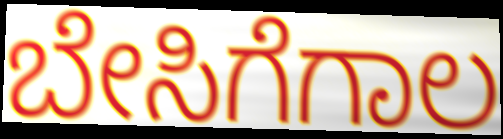
ಬೇಸಿಗೆಗಾಲ